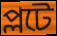
প্লটে